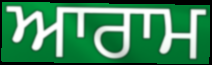
ਆਰਾਮ